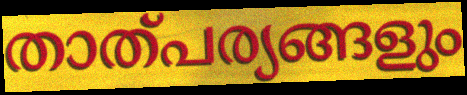
താത്പര്യങ്ങളും